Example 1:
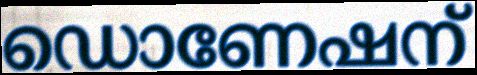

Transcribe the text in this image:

ഡൊണേഷന്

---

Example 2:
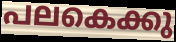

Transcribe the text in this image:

പലകെക്കു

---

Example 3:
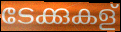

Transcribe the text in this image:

ടേക്കുകള്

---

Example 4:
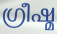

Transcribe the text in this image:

ഗ്രീഷ്മ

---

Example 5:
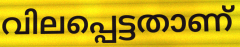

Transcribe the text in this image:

വിലപ്പെട്ടതാണ്